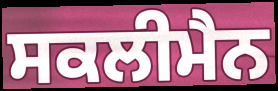
ਸਕਲੀਮੈਨ